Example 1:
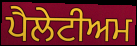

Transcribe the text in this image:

ਪੈਲੇਟੀਅਮ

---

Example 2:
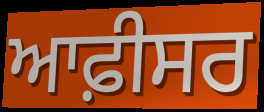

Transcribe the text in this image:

ਆਫ਼ੀਸਰ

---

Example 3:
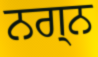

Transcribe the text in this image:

ਨਗ੍ਨ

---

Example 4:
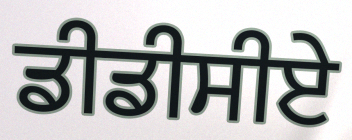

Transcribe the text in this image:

ਡੀਡੀਸੀਏ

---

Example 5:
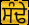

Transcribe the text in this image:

ਸੰਢੇ